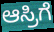
ಆಸ್ರಿಗೆ